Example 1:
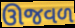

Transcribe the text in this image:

ઊજવળ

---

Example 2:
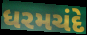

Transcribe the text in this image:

ધરમચંદે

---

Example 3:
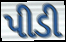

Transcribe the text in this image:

પીડી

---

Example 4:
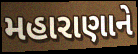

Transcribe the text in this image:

મહારાણાને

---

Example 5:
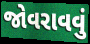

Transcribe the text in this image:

જોવરાવવું